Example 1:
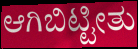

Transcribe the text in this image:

ಆಗಿಬಿಟ್ಟೀತು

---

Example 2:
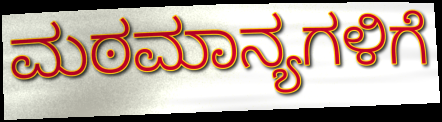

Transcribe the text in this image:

ಮಠಮಾನ್ಯಗಳಿಗೆ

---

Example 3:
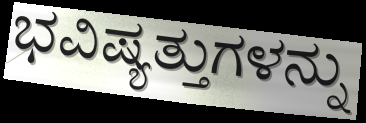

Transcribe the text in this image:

ಭವಿಷ್ಯತ್ತುಗಳನ್ನು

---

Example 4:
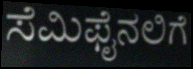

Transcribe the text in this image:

ಸೆಮಿಫೈನಲಿಗೆ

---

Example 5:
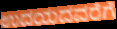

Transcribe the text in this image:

ಉದಯದವರೆಗೆ